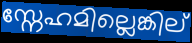
സ്നേഹമില്ലെങ്കില്